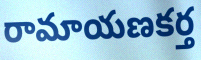
రామాయణకర్త